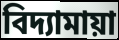
বিদ্যামায়া